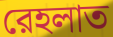
রেহলাত